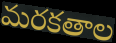
మరకతాల